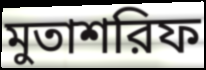
মুতাশরিফ